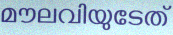
മൗലവിയുടേത്